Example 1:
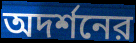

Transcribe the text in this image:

অদর্শনের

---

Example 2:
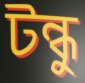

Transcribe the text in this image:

টন্ধু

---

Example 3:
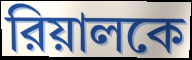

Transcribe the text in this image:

রিয়ালকে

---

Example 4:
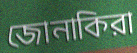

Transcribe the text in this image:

জোনাকিরা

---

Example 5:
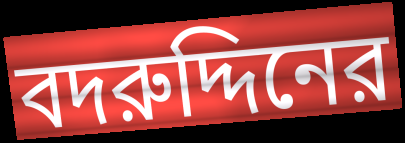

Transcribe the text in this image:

বদরুদ্দিনের